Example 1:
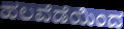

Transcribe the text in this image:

ಹಲವೆಡೆಯಿಂದ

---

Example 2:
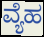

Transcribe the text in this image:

ವ್ಯೆಹ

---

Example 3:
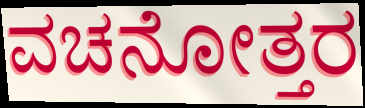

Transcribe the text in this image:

ವಚನೋತ್ತರ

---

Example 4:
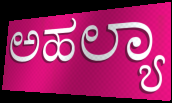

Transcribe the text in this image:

ಅಹಲ್ಯಾ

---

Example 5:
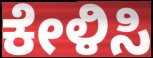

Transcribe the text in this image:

ಕೇಳಿಸಿ